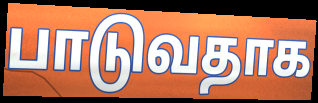
பாடுவதாக